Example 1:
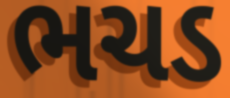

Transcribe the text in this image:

ભચડ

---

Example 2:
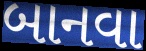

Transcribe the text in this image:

બાનવા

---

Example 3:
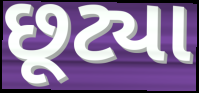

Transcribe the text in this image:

છૂટ્યા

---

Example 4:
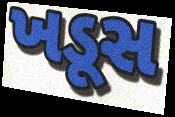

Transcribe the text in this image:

ખડૂસ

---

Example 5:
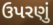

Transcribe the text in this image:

ઉપરણું